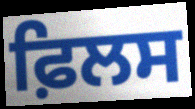
ਫ਼ਿਲਸ